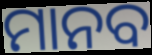
ମାନବ